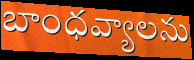
బాంధవ్యాలను